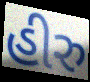
હીરુ